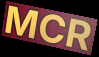
MCR